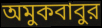
অমুকবাবুর